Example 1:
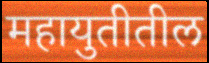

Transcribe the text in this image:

महायुतीतील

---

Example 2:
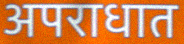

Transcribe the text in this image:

अपराधात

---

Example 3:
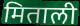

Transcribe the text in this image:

मिताली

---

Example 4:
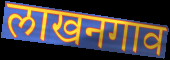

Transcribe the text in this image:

लाखनगाव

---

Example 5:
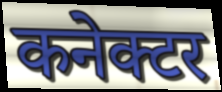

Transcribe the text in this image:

कनेक्टर